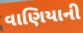
વાણિયાની